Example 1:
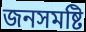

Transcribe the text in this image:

জনসমষ্টি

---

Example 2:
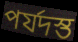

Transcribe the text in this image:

পর্যদস্ত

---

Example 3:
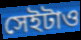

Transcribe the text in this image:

সেইটাও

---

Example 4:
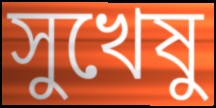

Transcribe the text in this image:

সুখেষু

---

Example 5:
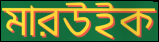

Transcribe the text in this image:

মারউইক